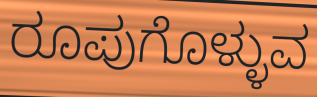
ರೂಪುಗೊಳ್ಳುವ